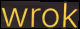
wrok